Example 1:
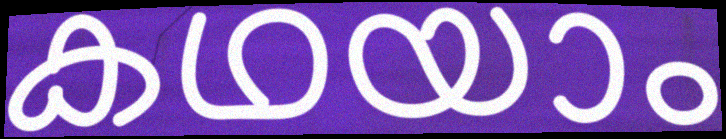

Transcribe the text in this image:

കഥയാം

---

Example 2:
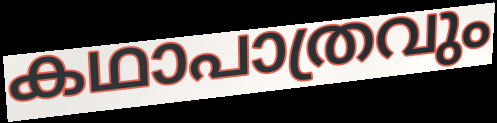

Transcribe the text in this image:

കഥാപാത്രവും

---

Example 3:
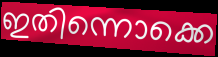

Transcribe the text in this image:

ഇതിന്നൊക്കെ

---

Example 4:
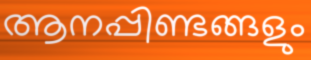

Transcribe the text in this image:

ആനപ്പിണ്ടങ്ങളും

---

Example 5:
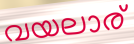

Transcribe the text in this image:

വയലാര്